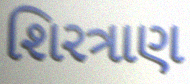
શિરત્રાણ